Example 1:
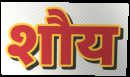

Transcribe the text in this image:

शौय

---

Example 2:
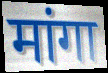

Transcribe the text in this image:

मांगा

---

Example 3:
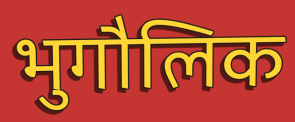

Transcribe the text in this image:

भुगौलिक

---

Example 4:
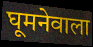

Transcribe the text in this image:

घूमनेवाला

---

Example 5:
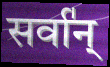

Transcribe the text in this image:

सर्वा॑न्